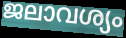
ജലാവശ്യം